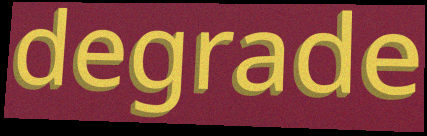
degrade